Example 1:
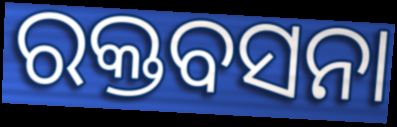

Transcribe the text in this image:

ରକ୍ତବସନା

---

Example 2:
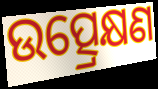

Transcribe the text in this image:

ଉତ୍ପ୍ରେକ୍ଷଣ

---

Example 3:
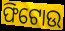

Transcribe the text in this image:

ଫିଟୋଉ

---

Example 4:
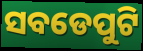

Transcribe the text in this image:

ସବଡେପୁଟି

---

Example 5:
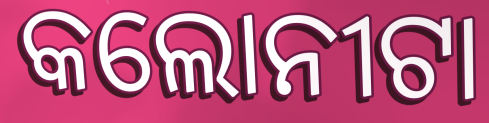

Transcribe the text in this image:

କଲୋନୀଟା